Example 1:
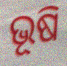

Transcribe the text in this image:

ଭୂଷି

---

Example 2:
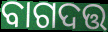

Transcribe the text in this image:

ବାଗଦତ୍ତ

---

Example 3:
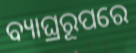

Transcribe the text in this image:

ବ୍ୟାଘ୍ରରୂପରେ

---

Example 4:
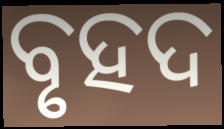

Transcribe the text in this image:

ବୃହଦ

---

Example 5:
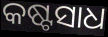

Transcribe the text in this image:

କଷ୍ଟସାଧ